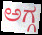
ಅಗ್ಗ